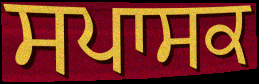
ਸਪਾਸਕ